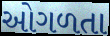
ઓગળતા